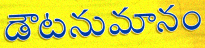
డౌటనుమానం